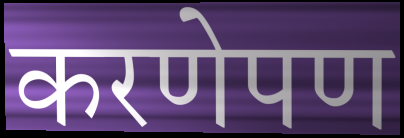
करणेपण